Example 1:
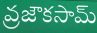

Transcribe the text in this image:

వ్రజౌకసామ్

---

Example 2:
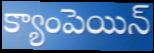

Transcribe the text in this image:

క్యాంపెయిన్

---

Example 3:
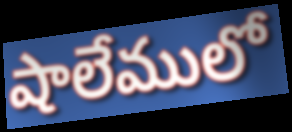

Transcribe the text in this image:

షాలేములో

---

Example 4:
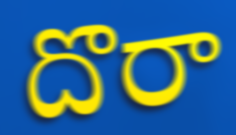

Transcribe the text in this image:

దొరా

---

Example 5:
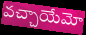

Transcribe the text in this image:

వచ్చాయేమో